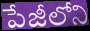
పేజీలోని